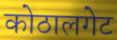
कोठालगेट